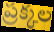
ప్రక్కల